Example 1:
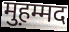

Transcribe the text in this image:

मुह़म्मद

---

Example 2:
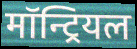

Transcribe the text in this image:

मॉन्ट्रियल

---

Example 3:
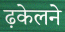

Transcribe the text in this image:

ढ़केलने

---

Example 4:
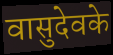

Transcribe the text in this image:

वासुदेवके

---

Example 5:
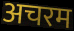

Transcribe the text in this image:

अचरम